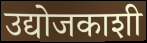
उद्योजकाशी